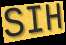
SIH